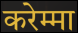
करेम्मा